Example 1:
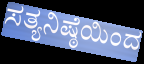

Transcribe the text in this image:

ಸತ್ಯನಿಷ್ಠೆಯಿಂದ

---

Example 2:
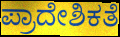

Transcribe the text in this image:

ಪ್ರಾದೇಶಿಕತೆ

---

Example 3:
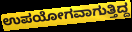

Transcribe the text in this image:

ಉಪಯೋಗವಾಗುತ್ತಿದ್ದ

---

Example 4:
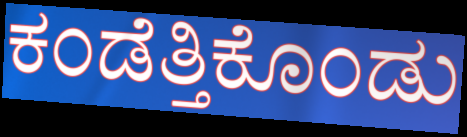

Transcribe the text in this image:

ಕಂಡೆತ್ತಿಕೊಂಡು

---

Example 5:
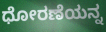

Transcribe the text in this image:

ಧೋರಣೆಯನ್ನ